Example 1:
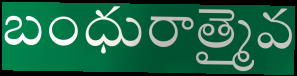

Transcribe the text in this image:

బంధురాత్మైవ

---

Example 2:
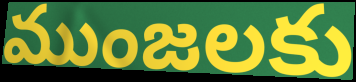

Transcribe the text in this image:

ముంజలకు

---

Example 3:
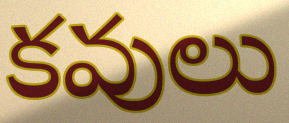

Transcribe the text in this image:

కవులు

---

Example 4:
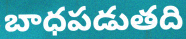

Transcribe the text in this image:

బాధపడుతది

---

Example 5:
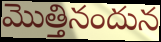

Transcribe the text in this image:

మొత్తినందున